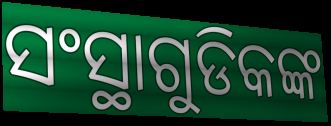
ସଂସ୍ଥାଗୁଡିକଙ୍କ